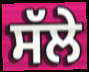
ਸੱਲੇ